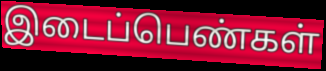
இடைப்பெண்கள்